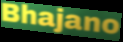
Bhajano